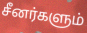
சீனர்களும்